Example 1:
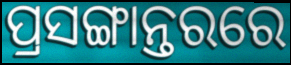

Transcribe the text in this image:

ପ୍ରସଙ୍ଗାନ୍ତରରେ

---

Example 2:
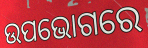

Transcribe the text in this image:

ଉପଭୋଗରେ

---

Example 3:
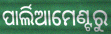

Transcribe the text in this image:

ପାର୍ଲିଆମେଣ୍ଟରୁ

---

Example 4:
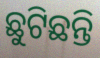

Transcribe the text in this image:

ଛୁଟିଛନ୍ତି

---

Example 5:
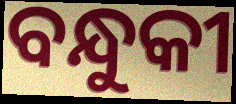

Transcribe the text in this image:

ବନ୍ଧୁକୀ